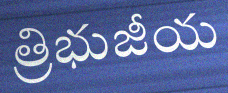
త్రిభుజీయ